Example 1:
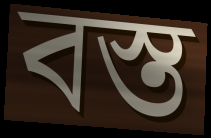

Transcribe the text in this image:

বস্ত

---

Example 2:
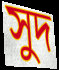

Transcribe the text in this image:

সুদ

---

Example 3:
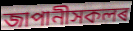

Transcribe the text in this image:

জাপানীসকলৰ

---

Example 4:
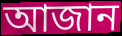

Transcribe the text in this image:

আজান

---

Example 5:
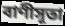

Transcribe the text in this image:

বাণীসূতা